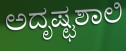
ಅದೃಷ್ಟಶಾಲಿ